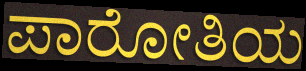
ಪಾರೋತಿಯ